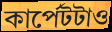
কার্পেটটাও